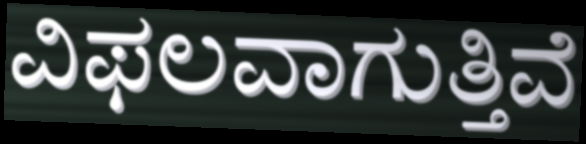
ವಿಫಲವಾಗುತ್ತಿವೆ